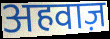
अहवाज़